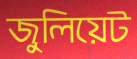
জুলিয়েট